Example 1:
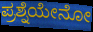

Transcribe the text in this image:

ಪ್ರಶ್ನೆಯೇನೋ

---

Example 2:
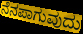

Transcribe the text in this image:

ನೆನಪಾಗುವುದು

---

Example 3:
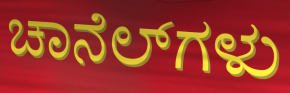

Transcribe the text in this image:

ಚಾನೆಲ್‌ಗಳು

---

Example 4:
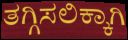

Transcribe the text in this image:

ತಗ್ಗಿಸಲಿಕ್ಕಾಗಿ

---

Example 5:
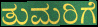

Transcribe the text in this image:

ತುಮರಿಗೆ